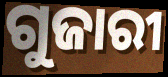
ଗୁଜାରୀ